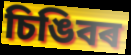
চিঙিবৰ